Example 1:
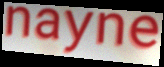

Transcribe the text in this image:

nayne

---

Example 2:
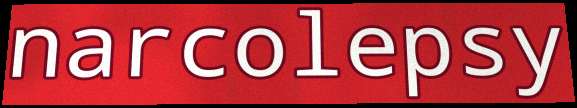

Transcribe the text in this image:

narcolepsy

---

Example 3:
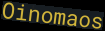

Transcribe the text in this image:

Oinomaos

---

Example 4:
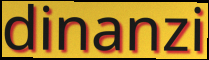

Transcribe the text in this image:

dinanzi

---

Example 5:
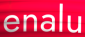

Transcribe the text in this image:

enalu